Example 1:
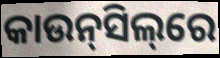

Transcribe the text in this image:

କାଉନ୍‌ସିଲ୍‌ରେ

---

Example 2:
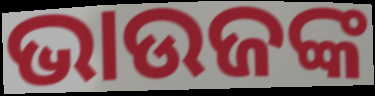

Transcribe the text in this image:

ଭାଉଜଙ୍କ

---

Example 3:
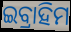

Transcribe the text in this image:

ଇବ୍ରାହିମ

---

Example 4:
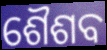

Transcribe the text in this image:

ଶୈଶବ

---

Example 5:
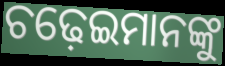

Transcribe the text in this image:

ଚଢ଼େଇମାନଙ୍କୁ